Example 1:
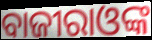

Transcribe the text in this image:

ବାଜୀରାଓଙ୍କ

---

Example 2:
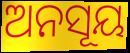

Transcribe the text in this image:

ଅନସୂୟ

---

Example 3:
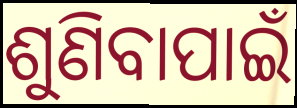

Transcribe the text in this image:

ଶୁଣିବାପାଇଁ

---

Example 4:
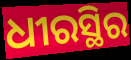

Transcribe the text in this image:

ଧୀରସ୍ଥିର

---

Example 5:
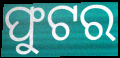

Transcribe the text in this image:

ଫୁଟର